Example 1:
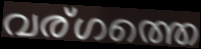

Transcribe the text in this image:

വര്ഗത്തെ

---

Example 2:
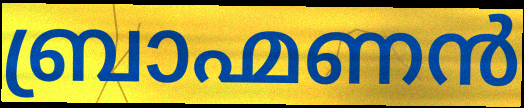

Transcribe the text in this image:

ബ്രാഹ്മണൻ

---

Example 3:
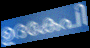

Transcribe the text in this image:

ഉദകേപി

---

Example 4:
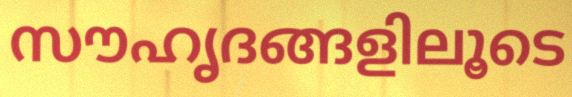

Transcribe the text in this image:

സൗഹൃദങ്ങളിലൂടെ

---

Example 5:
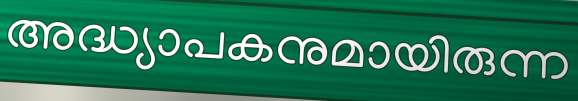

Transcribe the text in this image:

അദ്ധ്യാപകനുമായിരുന്ന